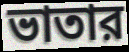
ভাতার